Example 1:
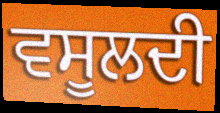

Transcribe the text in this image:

ਵਸੂਲਦੀ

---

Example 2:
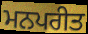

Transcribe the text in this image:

ਮਨਪਰੀਤ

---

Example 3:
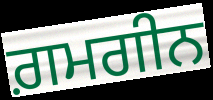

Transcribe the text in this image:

ਗ਼ਮਗੀਨ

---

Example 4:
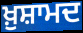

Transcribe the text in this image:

ਖ਼ੁਸ਼ਾਮਦ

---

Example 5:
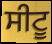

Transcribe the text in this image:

ਸੀਟੂ